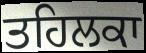
ਤਹਿਲਕਾ